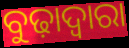
ବୁଢ଼ାଦ୍ୱାରା